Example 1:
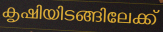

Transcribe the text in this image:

കൃഷിയിടങ്ങിലേക്ക്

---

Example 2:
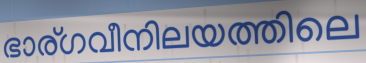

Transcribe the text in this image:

ഭാര്ഗവീനിലയത്തിലെ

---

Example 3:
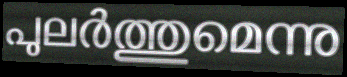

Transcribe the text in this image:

പുലർത്തുമെന്നു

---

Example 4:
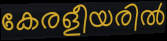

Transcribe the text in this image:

കേരളീയരിൽ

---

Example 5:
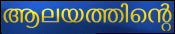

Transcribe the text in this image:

ആലയത്തിന്റെ